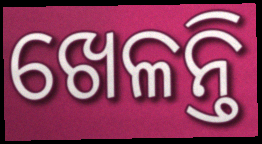
ଖେଳନ୍ତି